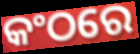
କଂଠରେ